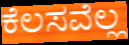
ಕೆಲಸವೆಲ್ಲ